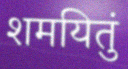
शमयितुं